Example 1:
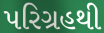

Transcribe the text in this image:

પરિગ્રહથી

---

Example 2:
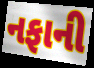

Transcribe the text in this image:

નફાની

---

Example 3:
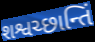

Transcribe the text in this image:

શશ્વચ્છાન્તિં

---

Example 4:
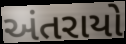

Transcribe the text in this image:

અંતરાયો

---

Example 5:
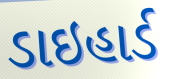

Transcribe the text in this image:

ડાઇહાર્ડ